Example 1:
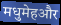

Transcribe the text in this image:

मधुमेहऔर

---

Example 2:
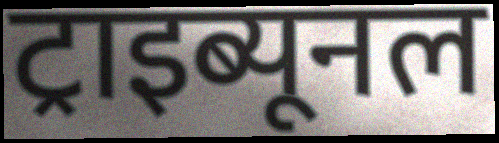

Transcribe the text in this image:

ट्राइब्यूनल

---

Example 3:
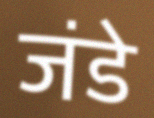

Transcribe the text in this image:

जंडे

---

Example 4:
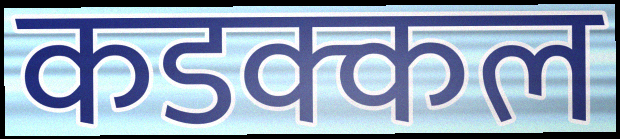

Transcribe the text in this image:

कडक्कल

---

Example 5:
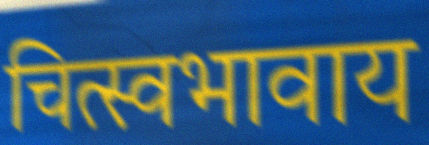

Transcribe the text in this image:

चित्स्वभावाय